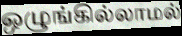
ஒழுங்கில்லாமல்